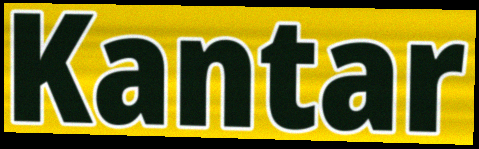
Kantar